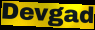
Devgad